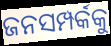
ଜନସମ୍ପର୍କକୁ